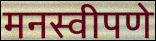
मनस्वीपणे